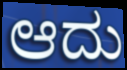
ಆದು